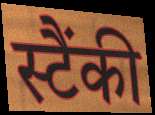
स्टैंकी